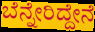
ಬೆನ್ನೇರಿದ್ದೇನೆ